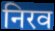
निरव